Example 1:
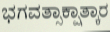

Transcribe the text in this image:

ಭಗವತ್ಸಾಕ್ಷಾತ್ಕಾರ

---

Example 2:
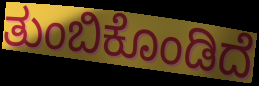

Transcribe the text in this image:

ತುಂಬಿಕೊಂಡಿದೆ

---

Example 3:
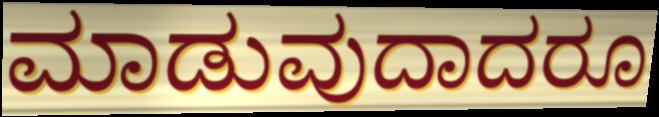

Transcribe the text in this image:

ಮಾಡುವುದಾದರೂ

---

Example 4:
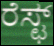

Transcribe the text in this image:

ರೆಸ್ಟ್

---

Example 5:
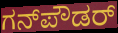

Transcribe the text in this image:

ಗನ್‌ಪೌಡರ್